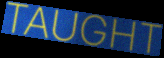
TAUGHT